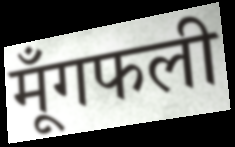
मूँगफली